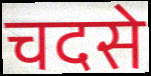
चदसे